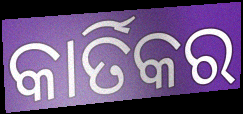
କାର୍ତିକର